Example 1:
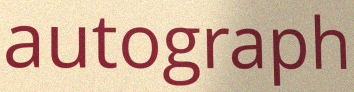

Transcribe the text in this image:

autograph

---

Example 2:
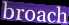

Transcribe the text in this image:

broach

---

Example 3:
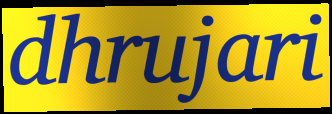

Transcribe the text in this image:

dhrujari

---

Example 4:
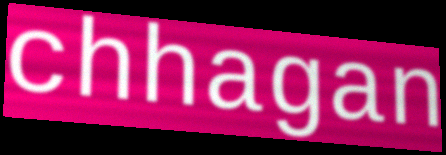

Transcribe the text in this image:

chhagan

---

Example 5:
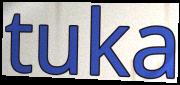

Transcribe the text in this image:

tuka